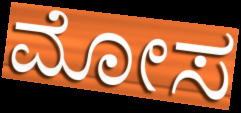
ಮೋಸ